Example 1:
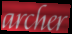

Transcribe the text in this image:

archer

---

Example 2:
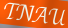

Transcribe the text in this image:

TNAU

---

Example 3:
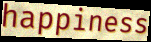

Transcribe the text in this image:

happiness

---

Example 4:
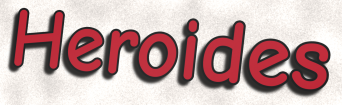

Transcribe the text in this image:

Heroides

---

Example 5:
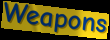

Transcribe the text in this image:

Weapons